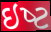
ઇષ્‍ટ